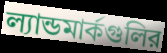
ল্যান্ডমার্কগুলির